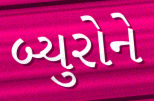
બ્યુરોને